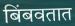
बिंबवतात